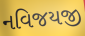
નવિજયજી